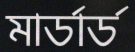
মার্ডার্ড